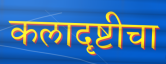
कलादृष्टीचा